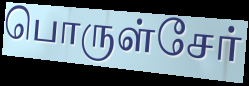
பொருள்சேர்